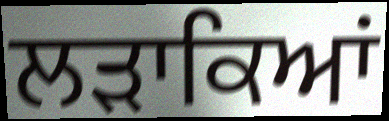
ਲੜਾਕਿਆਂ